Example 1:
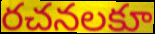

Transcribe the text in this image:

రచనలకూ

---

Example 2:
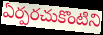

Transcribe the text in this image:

ఏర్పరచుకొంటిని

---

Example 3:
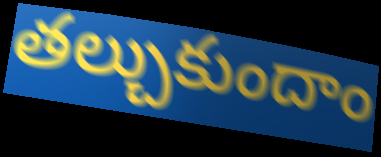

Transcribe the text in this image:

తల్చుకుందాం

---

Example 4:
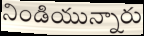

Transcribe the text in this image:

నిండియున్నారు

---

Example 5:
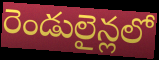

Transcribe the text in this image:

రెండులైన్లలో